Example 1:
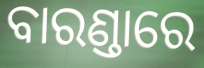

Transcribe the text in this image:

ବାରଣ୍ଡାରେ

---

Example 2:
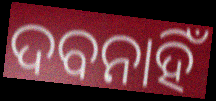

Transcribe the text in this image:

ଦବନାହିଁ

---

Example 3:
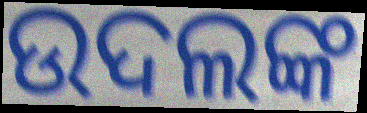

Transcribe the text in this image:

ଉଦଲଙ୍କ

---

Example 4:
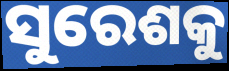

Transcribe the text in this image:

ସୁରେଶକୁ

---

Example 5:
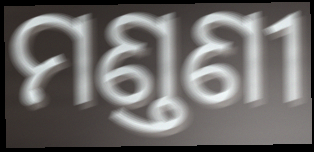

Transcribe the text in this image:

ମଣ୍ଡଣୀ